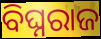
ବିଘ୍ନରାଜ